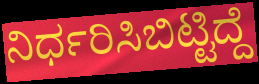
ನಿರ್ಧರಿಸಿಬಿಟ್ಟಿದ್ದೆ